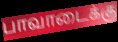
பாவாடைக்கு